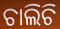
ଚାଲିଚି